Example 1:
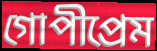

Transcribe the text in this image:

গোপীপ্রেম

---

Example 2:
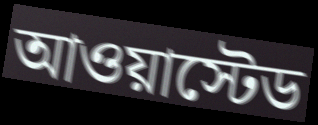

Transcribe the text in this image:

আওয়াস্টেড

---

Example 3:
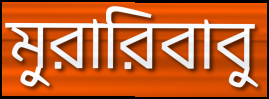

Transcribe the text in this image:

মুরারিবাবু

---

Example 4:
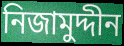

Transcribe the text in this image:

নিজামুদ্দীন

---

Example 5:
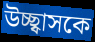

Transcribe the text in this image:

উচ্ছ্বাসকে